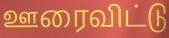
ஊரைவிட்டு